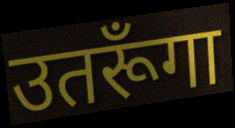
उतरूँगा